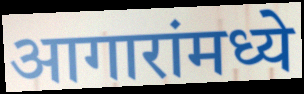
आगारांमध्ये